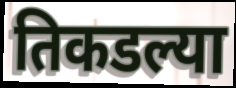
तिकडल्या